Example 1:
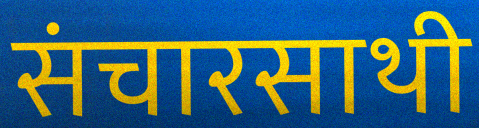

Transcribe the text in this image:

संचारसाथी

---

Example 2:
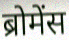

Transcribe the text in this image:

ब्रोमेंस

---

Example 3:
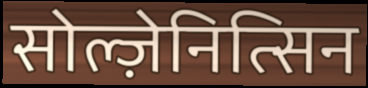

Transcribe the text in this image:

सोल्ज़ेनित्सिन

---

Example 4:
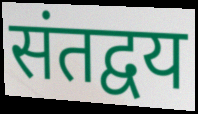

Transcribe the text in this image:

संतद्वय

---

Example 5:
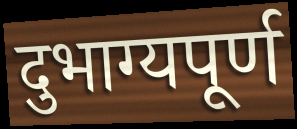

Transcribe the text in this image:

दुभाग्यपूर्ण